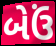
બેઉં